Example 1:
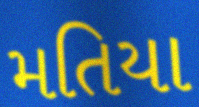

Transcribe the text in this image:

મતિયા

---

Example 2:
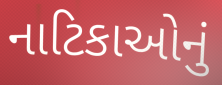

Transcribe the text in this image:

નાટિકાઓનું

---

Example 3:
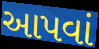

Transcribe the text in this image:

આપવાં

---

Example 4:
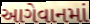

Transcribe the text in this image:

આગેવાનમાં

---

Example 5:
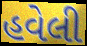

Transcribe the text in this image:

હવેલી